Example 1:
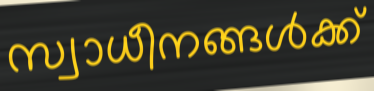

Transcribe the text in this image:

സ്വാധീനങ്ങൾക്ക്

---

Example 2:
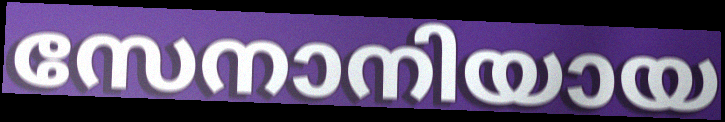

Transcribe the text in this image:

സേനാനിയായ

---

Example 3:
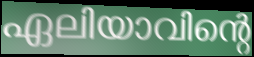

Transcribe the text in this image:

ഏലിയാവിന്റെ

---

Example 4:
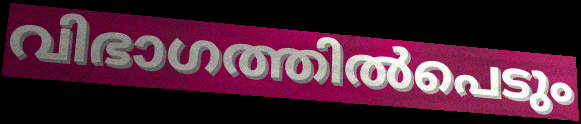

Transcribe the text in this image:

വിഭാഗത്തിൽപെടും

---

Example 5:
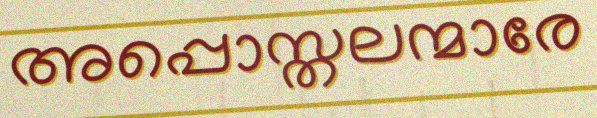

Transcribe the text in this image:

അപ്പൊസ്തലന്മാരേ